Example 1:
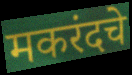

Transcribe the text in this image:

मकरंदचे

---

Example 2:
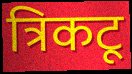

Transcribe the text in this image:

त्रिकटू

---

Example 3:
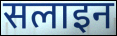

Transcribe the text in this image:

सलाइन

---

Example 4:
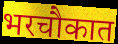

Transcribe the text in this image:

भरचौकात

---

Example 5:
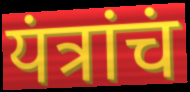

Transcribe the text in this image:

यंत्रांचं